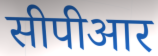
सीपीआर